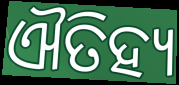
ଐତିହ୍ଯ